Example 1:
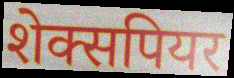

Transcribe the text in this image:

शेक्सपियर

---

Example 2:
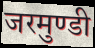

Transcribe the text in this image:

जरमुण्डी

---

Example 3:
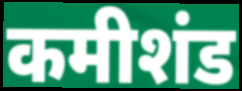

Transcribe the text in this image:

कमीशंड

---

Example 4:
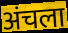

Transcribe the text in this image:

अंचला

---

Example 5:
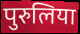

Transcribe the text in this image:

पुरुलिया